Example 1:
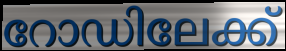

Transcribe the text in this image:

റോഡിലേക്ക്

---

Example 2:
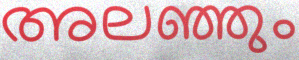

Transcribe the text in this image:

അലഞ്ഞും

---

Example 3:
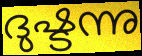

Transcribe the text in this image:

ദുഷ്ടന്നു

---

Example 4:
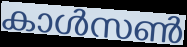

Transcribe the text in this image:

കാൾസൺ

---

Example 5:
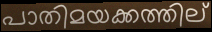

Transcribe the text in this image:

പാതിമയക്കത്തില്